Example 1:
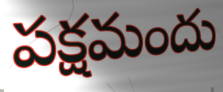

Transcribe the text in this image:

పక్షమందు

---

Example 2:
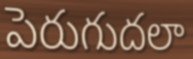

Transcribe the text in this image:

పెరుగుదలా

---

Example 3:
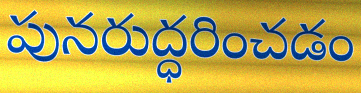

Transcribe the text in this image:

పునరుద్ధరించడం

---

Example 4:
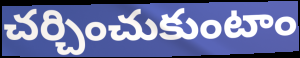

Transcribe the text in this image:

చర్చించుకుంటాం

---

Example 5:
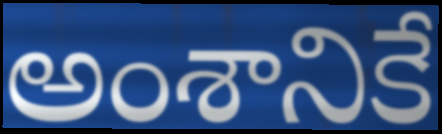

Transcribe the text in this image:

అంశానికే